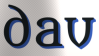
dau